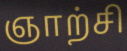
ஞாற்சி